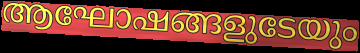
ആഘോഷങ്ങളുടേയും